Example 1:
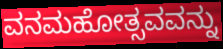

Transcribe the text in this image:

ವನಮಹೋತ್ಸವವನ್ನು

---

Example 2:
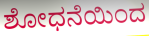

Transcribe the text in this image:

ಶೋಧನೆಯಿಂದ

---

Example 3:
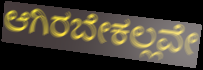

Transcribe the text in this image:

ಆಗಿರಬೇಕಲ್ಲವೇ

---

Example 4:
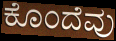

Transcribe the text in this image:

ಕೊಂದೆವು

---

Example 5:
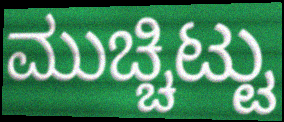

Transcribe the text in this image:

ಮುಚ್ಚಿಟ್ಟು